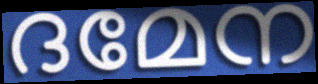
ദമേന